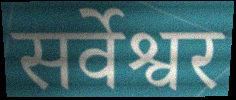
सर्वेश्वर